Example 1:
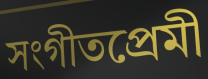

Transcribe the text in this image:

সংগীতপ্রেমী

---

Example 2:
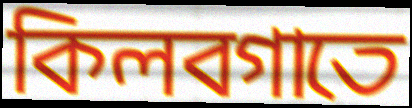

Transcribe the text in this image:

কিলবগাতে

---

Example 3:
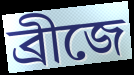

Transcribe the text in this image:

ব্রীজে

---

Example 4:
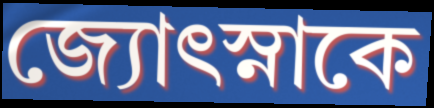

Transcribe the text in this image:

জ্যোৎস্নাকে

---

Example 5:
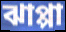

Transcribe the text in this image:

ঝাপ্পা